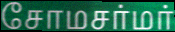
சோமசர்மர்